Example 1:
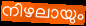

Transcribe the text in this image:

നിഴലായും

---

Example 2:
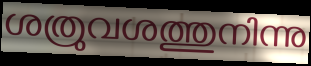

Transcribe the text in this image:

ശത്രുവശത്തുനിന്നു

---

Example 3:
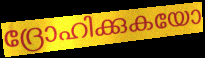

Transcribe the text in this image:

ദ്രോഹിക്കുകയോ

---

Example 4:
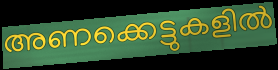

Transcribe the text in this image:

അണക്കെട്ടുകളിൽ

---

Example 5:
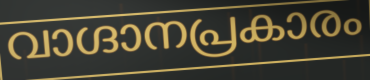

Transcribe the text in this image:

വാഗ്ദാനപ്രകാരം